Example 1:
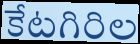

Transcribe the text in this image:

కేటగిరిల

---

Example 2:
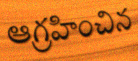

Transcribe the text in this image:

ఆగ్రహించిన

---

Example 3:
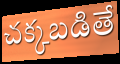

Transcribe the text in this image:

చక్కబడితే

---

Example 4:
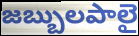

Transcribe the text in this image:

జబ్బులపాలై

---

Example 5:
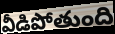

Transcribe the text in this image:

వీడిపోతుంది